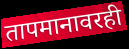
तापमानावरही